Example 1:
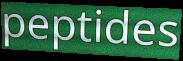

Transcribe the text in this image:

peptides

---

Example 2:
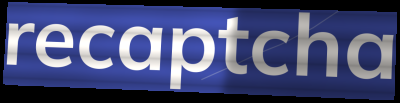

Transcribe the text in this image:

recaptcha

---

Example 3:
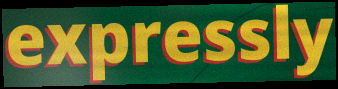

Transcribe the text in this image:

expressly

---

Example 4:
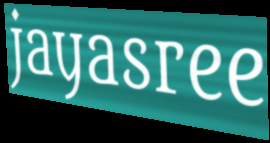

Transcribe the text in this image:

jayasree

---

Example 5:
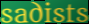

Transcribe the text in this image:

sadists